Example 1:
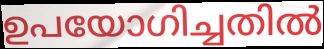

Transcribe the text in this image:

ഉപയോഗിച്ചതിൽ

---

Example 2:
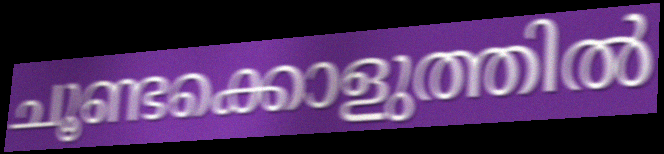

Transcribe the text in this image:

ചൂണ്ടക്കൊളുത്തിൽ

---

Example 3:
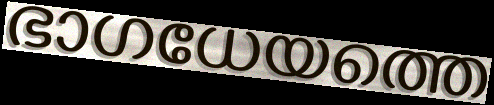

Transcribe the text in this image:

ഭാഗധേയത്തെ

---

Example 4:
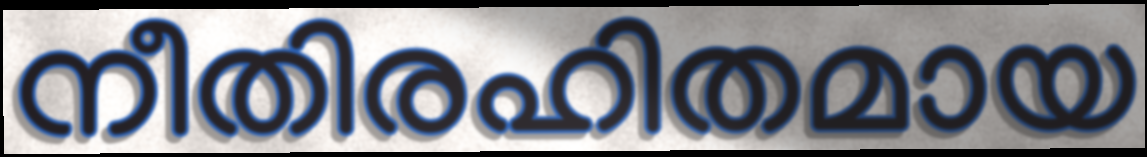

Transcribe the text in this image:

നീതിരഹിതമായ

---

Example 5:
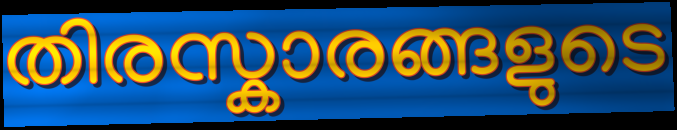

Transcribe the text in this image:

തിരസ്കാരങ്ങളുടെ